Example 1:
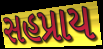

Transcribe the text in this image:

સહપ્રાય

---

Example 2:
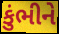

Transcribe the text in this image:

કુંભીને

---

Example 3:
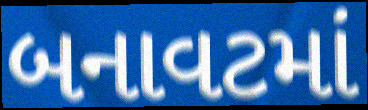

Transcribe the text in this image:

બનાવટમાં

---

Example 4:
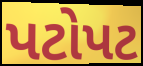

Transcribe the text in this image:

પટોપટ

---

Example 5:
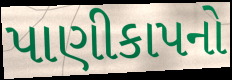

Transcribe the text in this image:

પાણીકાપનો